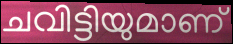
ചവിട്ടിയുമാണ്